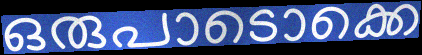
ഒരുപാടൊക്കെ